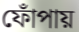
ফোঁপায়